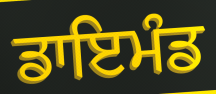
ਡਾਇਮੰਡ